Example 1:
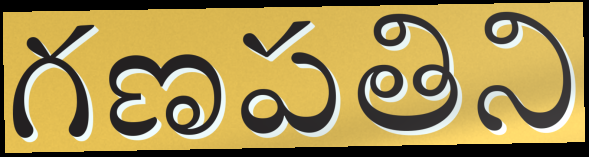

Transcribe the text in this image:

గణపతిని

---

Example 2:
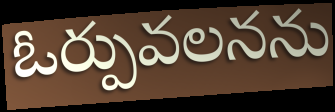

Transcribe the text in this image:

ఓర్పువలనను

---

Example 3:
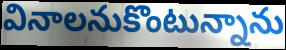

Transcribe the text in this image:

వినాలనుకొంటున్నాను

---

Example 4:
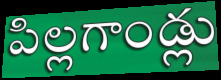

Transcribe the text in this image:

పిల్లగాండ్లు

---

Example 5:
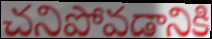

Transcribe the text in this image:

చనిపోవడానికి